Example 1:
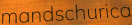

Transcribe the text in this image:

mandschurica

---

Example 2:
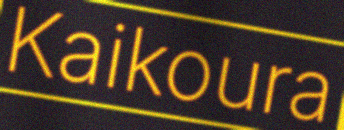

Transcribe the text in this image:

Kaikoura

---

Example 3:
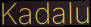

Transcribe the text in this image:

Kadalu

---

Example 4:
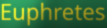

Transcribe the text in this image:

Euphretes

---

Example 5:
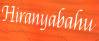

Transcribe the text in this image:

Hiranyabahu